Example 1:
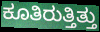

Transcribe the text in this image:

ಕೂತಿರುತ್ತಿತ್ತು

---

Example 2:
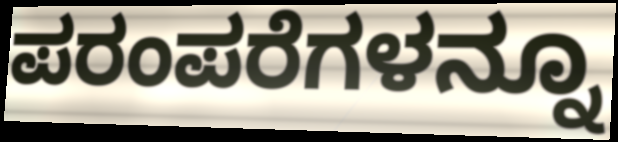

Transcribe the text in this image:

ಪರಂಪರೆಗಳನ್ನೂ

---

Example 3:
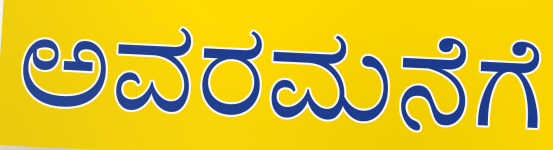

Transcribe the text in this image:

ಅವರಮನೆಗೆ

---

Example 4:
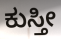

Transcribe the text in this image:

ಕುಸ್ತೀ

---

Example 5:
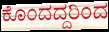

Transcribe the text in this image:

ಕೊಂದದ್ದರಿಂದ